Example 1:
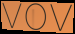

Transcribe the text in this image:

vov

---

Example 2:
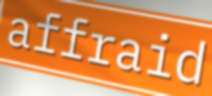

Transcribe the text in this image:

affraid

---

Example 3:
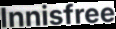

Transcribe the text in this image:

Innisfree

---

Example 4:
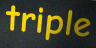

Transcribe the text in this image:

triple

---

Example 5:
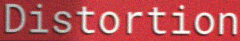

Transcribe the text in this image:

Distortion